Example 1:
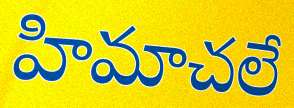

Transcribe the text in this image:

హిమాచలే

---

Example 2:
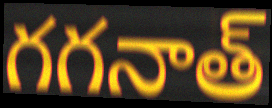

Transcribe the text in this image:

గగనాత్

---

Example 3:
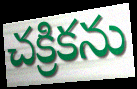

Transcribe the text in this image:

చక్రికను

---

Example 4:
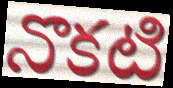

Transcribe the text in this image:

నొకటి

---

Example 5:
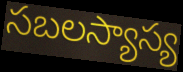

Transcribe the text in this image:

సబలస్యాస్య